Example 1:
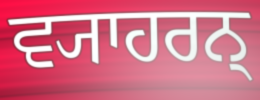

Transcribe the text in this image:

ਵ੍ਯਾਹਰਨ੍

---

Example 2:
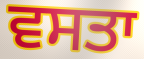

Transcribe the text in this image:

ਵਸਤਾ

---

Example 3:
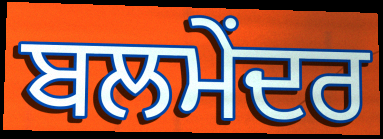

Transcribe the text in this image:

ਬਲਮੇਂਦਰ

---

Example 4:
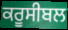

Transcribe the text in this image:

ਕਰੂਸੀਬਲ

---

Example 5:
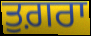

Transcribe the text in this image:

ਤੁਗ਼ਰਾ